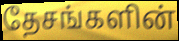
தேசங்களின்